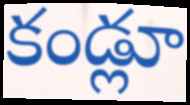
కండ్లూ